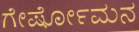
ಗೇರ್ಷೋಮನ